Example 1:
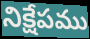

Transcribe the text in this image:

నిక్షేపము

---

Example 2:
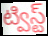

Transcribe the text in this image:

ట్విస్ట్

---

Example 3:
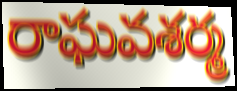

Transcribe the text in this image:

రాఘవశర్మ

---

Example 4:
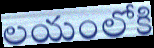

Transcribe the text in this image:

లయంలోకి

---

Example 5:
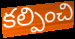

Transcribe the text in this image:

కల్పించి